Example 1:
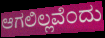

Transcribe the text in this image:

ಆಗಲಿಲ್ಲವೆಂದು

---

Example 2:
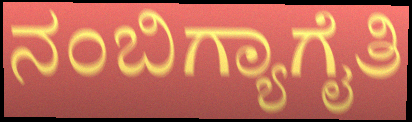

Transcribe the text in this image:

ನಂಬಿಗ್ಯಾಗೈತಿ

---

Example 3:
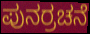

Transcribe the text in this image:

ಪುನರ್ರಚನೆ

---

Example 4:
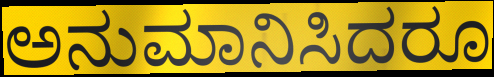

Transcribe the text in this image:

ಅನುಮಾನಿಸಿದರೂ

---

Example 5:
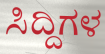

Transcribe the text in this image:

ಸಿದ್ದಿಗಳ